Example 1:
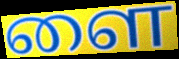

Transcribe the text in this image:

ளை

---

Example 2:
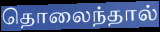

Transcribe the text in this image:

தொலைந்தால்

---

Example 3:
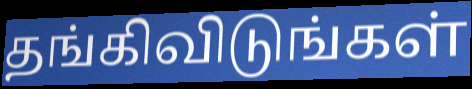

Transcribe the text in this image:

தங்கிவிடுங்கள்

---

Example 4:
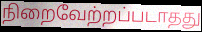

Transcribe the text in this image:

நிறைவேற்றப்படாதது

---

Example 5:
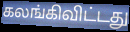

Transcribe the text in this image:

கலங்கிவிட்டது